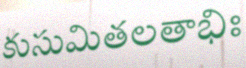
కుసుమితలతాభిః